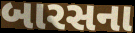
બારસના